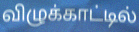
விழுக்காட்டில்